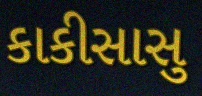
કાકીસાસુ